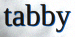
tabby